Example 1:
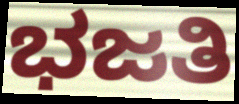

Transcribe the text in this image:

ಭಜತಿ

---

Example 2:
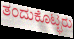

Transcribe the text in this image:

ತಂದುಕೊಟ್ಟರು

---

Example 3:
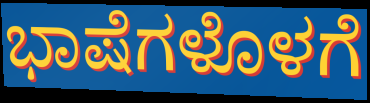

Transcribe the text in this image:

ಭಾಷೆಗಳೊಳಗೆ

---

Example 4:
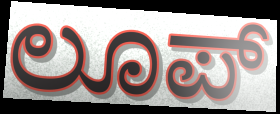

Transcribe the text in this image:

ಲೂಪ್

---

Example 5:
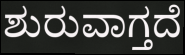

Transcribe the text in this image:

ಶುರುವಾಗ್ತದೆ